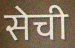
सेची